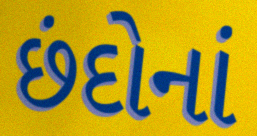
છંદોનાં